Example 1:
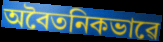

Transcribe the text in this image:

অবৈতনিকভাৱে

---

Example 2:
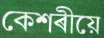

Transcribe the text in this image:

কেশৰীয়ে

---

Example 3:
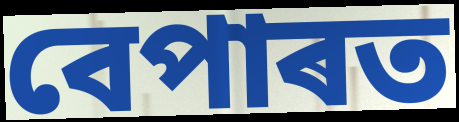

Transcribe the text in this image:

বেপাৰত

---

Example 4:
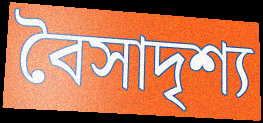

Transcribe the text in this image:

বৈসাদৃশ্য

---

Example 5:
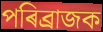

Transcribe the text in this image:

পৰিব্ৰাজক